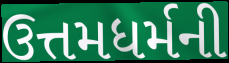
ઉત્તમધર્મની